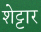
शेट्टार